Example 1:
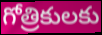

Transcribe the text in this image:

గోత్రికులకు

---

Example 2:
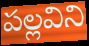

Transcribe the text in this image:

పల్లవిని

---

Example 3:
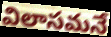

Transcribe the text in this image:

విలాసమనే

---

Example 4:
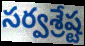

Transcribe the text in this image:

సర్వశ్రేష్ట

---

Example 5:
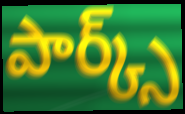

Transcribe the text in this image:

పార్క్స్